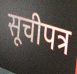
सूचीपत्र